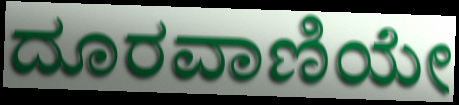
ದೂರವಾಣಿಯೇ